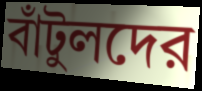
বাঁটুলদের